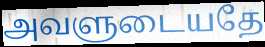
அவளுடையதே